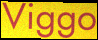
Viggo